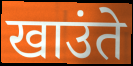
खाउंते